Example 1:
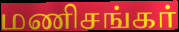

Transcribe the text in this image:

மணிசங்கர்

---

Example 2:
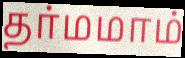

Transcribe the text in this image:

தர்மமாம்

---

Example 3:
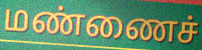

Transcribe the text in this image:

மண்ணைச்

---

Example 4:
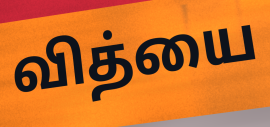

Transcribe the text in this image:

வித்யை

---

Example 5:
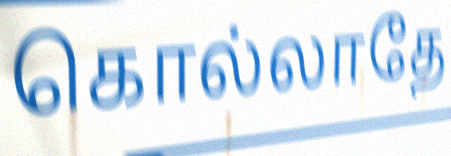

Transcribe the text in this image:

கொல்லாதே